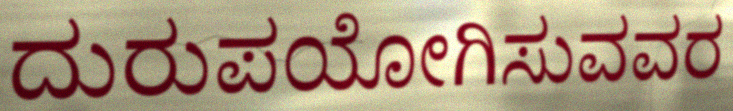
ದುರುಪಯೋಗಿಸುವವರ